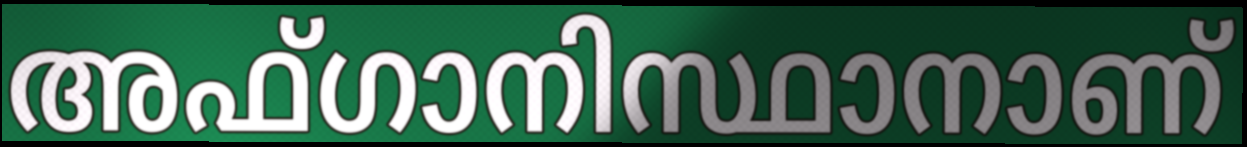
അഫ്ഗാനിസ്ഥാനാണ്